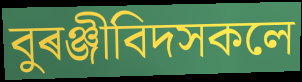
বুৰঞ্জীবিদসকলে